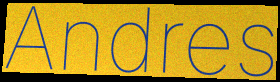
Andres